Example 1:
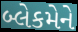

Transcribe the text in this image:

બ્લેકમેને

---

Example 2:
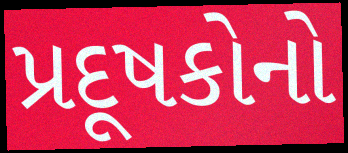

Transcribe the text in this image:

પ્રદૂષકોનો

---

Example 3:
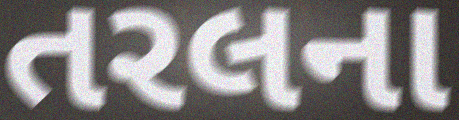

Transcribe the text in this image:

તરલના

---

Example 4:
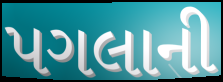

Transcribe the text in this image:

પગલાની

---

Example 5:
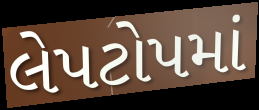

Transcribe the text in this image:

લેપટોપમાં